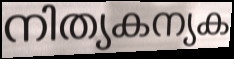
നിത്യകന്യക